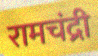
रामचंद्री